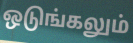
ஒடுங்கலும்